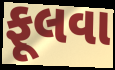
ફૂલવા